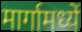
मार्गामध्यें